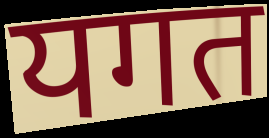
यगत